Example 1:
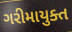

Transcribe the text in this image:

ગરીમાયુક્ત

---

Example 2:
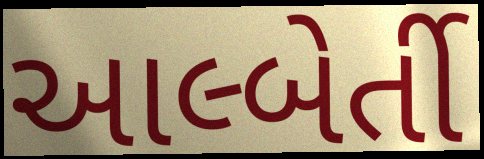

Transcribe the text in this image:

આલ્બેર્તી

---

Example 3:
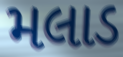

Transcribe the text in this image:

મલાડ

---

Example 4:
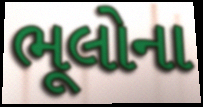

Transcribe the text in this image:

ભૂલોના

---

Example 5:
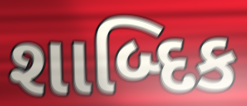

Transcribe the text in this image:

શાબ્દિક